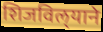
शिजविल्याने